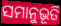
ସମାନୁଭୂତି